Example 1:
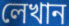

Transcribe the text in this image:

লেখান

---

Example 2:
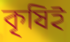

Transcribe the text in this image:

কৃষিই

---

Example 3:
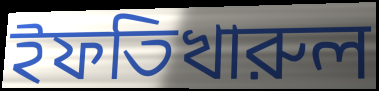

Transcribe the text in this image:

ইফতিখারুল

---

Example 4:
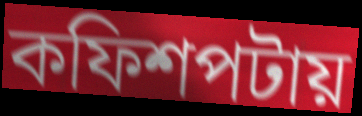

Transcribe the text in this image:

কফিশপটায়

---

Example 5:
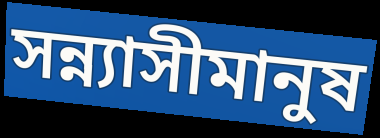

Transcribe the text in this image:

সন্ন্যাসীমানুষ